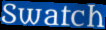
Swatch